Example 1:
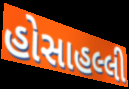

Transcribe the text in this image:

હોસાહલ્લી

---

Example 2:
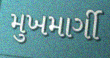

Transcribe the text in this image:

મુખમાર્ગી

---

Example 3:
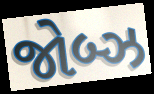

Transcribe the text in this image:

જોબ્ઝ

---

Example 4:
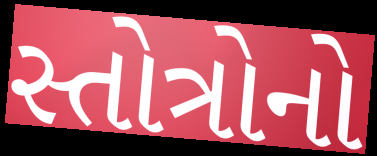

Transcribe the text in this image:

સ્તોત્રોનો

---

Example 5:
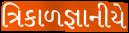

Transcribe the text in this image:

ત્રિકાળજ્ઞાનીયે